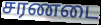
சரணடை